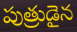
పుత్రుడైన